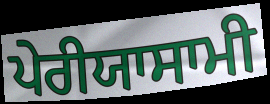
ਪੇਰੀਯਾਸਾਮੀ